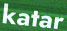
katar